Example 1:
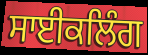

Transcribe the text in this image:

ਸਾਈਕਲਿੰਗ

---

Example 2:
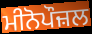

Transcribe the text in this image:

ਮੀਨੋਪੌਜ਼ਲ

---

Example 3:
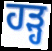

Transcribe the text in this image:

ਹੜ੍ਹ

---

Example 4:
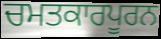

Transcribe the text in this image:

ਚਮਤਕਾਰਪੂਰਨ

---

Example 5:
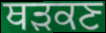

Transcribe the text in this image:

ਥੜਕਣ